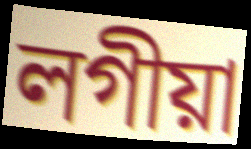
লগীয়া